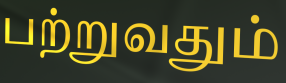
பற்றுவதும்